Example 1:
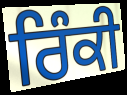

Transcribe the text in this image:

ਰਿੰਕੀ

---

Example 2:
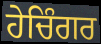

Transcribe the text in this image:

ਹੇਚਿੰਗਰ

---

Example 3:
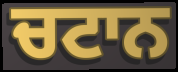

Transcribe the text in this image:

ਚਟਾਨ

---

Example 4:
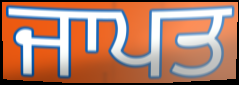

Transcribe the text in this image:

ਜਾਪਤ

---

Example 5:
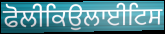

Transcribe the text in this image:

ਫੋਲੀਕਿਉਲਾਈਟਿਸ